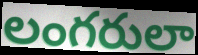
లంగరులా